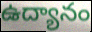
ఉద్యానం